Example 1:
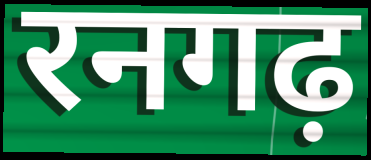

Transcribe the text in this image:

रनगढ़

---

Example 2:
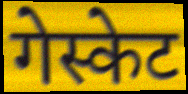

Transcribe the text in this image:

गेस्केट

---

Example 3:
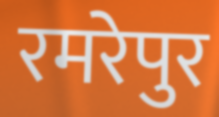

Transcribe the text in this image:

रमरेपुर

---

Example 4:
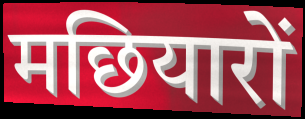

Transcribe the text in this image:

मछियारों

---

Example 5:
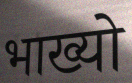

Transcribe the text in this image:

भाख्यो